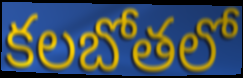
కలబోతలో